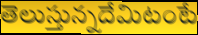
తెలుస్తున్నదేమిటంటే